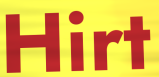
Hirt